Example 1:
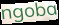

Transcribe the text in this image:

ngoba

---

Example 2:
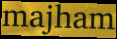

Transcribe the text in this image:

majham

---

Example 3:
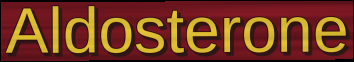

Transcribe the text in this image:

Aldosterone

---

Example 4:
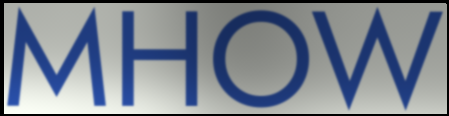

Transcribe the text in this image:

MHOW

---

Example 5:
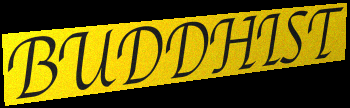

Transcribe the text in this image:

BUDDHIST